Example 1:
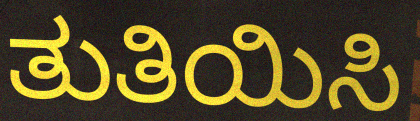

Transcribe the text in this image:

ತುತಿಯಿಸಿ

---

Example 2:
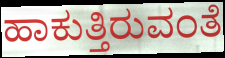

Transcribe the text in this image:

ಹಾಕುತ್ತಿರುವಂತೆ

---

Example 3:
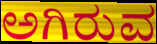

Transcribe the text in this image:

ಅಗಿರುವ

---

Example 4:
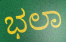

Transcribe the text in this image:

ಭಲಾ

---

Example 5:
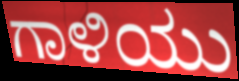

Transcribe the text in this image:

ಗಾಳಿಯು